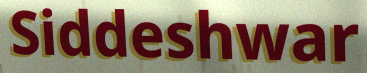
Siddeshwar